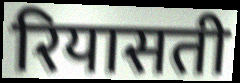
रियासती